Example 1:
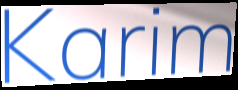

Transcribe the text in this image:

Karim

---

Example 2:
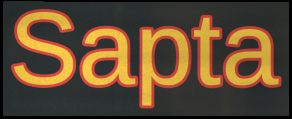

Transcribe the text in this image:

Sapta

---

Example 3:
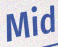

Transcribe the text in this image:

Mid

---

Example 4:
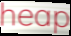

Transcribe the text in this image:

heap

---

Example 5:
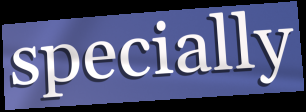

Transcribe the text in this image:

specially